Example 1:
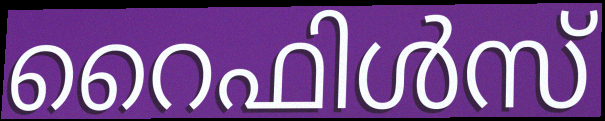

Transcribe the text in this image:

റൈഫിൾസ്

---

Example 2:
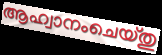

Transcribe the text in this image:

ആഹ്വാനംചെയ്തു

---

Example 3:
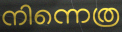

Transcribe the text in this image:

നിന്നെത്ര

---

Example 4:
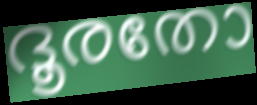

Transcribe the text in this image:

ദൂരതോ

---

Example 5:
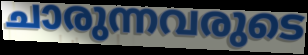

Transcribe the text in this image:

ചാരുന്നവരുടെ